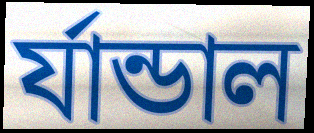
র্যান্ডাল